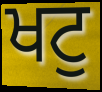
ਖਟੁ